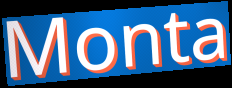
Monta